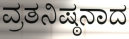
ವ್ರತನಿಷ್ಠನಾದ